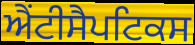
ਐਂਟੀਸੈਪਟਿਕਸ